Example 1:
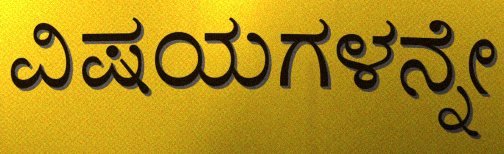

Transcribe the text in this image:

ವಿಷಯಗಳನ್ನೇ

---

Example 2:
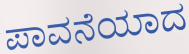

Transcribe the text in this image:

ಪಾವನೆಯಾದ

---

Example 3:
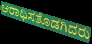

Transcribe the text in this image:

ಆರಾಧಿಸತೊಡಗಿದರು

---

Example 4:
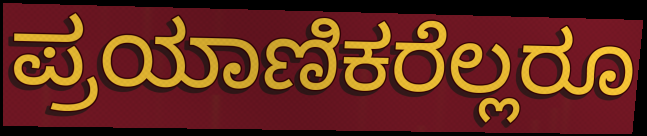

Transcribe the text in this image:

ಪ್ರಯಾಣಿಕರೆಲ್ಲರೂ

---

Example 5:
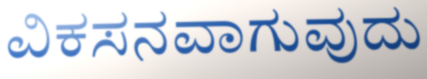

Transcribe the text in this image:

ವಿಕಸನವಾಗುವುದು